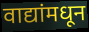
वाद्यांमधून